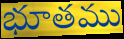
భూతము